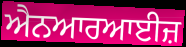
ਐਨਆਰਆਈਜ਼